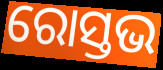
ରୋସ୍ତଭ